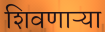
शिवणाऱ्या